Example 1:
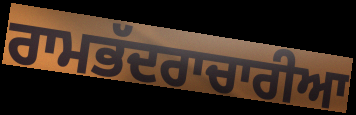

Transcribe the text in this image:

ਰਾਮਭੱਦਰਾਚਾਰੀਆ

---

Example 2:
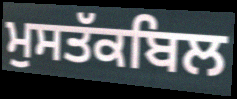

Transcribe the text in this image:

ਮੁਸਤੱਕਬਿਲ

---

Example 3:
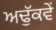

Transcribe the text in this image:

ਅਢੁੱਕਵੇਂ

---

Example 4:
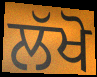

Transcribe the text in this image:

ਲੱਖੋ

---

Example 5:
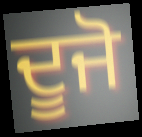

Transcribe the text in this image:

ਦੂਜੋ